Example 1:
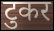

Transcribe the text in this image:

टुकर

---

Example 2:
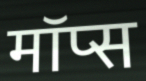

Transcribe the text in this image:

मॉप्स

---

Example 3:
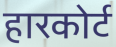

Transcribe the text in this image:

हारकोर्ट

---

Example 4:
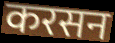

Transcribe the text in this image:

करसन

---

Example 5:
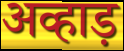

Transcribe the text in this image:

अव्हाड़